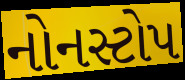
નોનસ્ટોપ